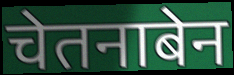
चेतनाबेन